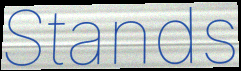
Stands